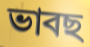
ভাবছ